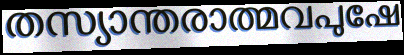
തസ്യാന്തരാത്മവപുഷേ